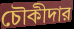
চৌকীদার